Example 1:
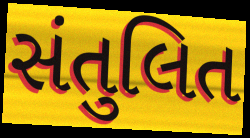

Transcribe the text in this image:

સંતુલિત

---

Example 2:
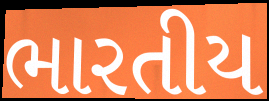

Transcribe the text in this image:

ભારતીય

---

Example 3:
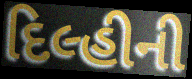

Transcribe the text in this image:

દિલ્હીની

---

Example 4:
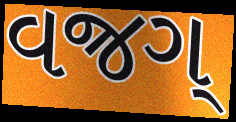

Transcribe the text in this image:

વજ્રગ્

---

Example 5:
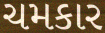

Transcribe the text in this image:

ચમકાર